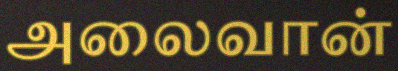
அலைவான்